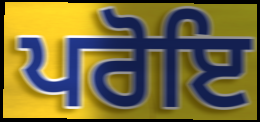
ਪਰੋਇ